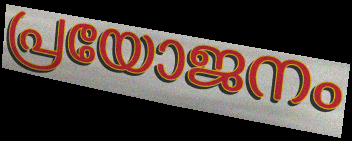
പ്രയോജനം